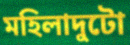
মহিলাদুটো